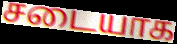
சடையாக